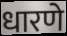
धारणे